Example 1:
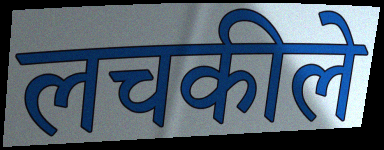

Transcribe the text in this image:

लचकीले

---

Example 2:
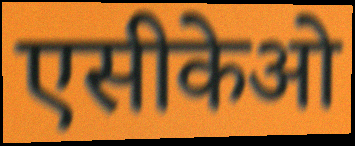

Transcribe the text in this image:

एसीकेओ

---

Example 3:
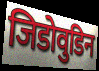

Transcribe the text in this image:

जिडोवुडिन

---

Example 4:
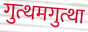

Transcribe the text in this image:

गुत्थमगुत्था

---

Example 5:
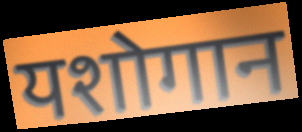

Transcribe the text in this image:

यशोगान